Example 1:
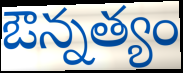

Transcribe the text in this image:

ఔన్నత్యం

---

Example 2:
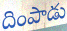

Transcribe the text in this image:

దింపాడు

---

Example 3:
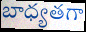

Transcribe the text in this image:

బాధ్యతగా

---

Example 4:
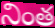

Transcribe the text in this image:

నింత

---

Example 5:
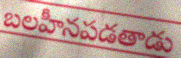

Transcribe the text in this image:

బలహీనపడతాడు